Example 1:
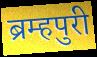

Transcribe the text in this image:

ब्रम्हपुरी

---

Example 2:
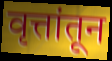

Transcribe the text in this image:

वृत्तांतून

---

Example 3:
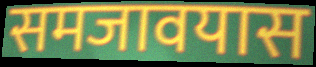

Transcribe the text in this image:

समजावयास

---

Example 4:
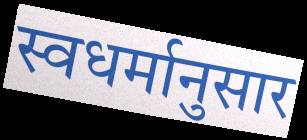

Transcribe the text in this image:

स्वधर्मानुसार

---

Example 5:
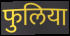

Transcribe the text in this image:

फुलिया